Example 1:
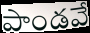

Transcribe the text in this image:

పాండవే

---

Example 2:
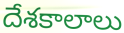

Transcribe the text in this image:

దేశకాలాలు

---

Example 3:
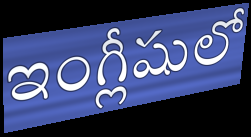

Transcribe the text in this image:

ఇంగ్లీషులో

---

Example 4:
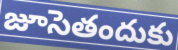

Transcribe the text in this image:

జూసెతందుకు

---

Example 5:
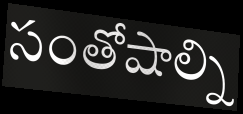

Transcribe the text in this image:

సంతోషాల్ని